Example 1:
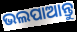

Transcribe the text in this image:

ଭଲପାଆନ୍ତୁ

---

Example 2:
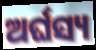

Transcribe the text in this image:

ଅର୍ଘସ୍ୟ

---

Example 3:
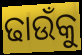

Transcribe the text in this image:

ଢାଉଁକୁ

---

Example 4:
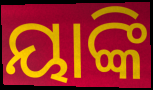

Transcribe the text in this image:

ୟାଙ୍କି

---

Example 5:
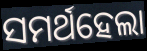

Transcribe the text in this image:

ସମର୍ଥହେଲା